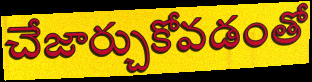
చేజార్చుకోవడంతో